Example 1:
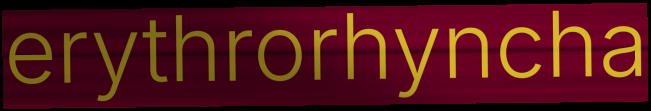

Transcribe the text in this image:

erythrorhyncha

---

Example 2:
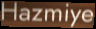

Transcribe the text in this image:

Hazmiye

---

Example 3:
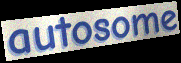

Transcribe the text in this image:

autosome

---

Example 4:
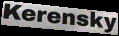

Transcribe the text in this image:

Kerensky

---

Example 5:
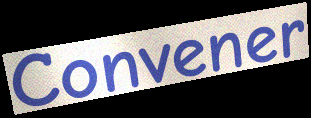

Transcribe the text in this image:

Convener